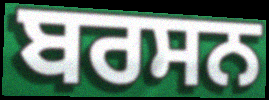
ਬਰਸਨ